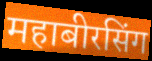
महाबीरसिंग